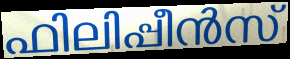
ഫിലിപ്പീൻസ്